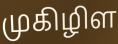
முகிழிள